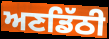
ਅਣਡਿੱਠੀ